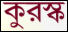
কুরস্ক